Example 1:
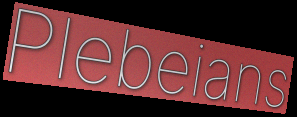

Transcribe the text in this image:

Plebeians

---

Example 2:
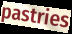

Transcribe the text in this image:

pastries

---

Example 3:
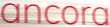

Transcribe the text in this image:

ancora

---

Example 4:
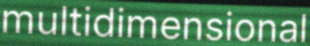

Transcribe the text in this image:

multidimensional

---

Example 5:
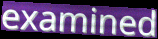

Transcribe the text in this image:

examined